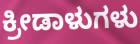
ಕ್ರೀಡಾಳುಗಳು